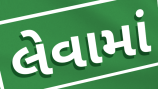
લેવામાં